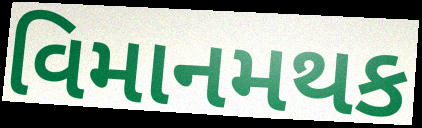
વિમાનમથક